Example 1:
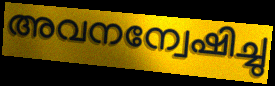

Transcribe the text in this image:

അവനന്വേഷിച്ചു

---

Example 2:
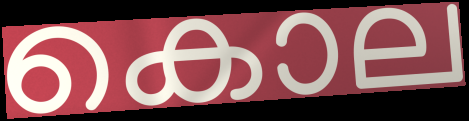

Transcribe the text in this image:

കൊല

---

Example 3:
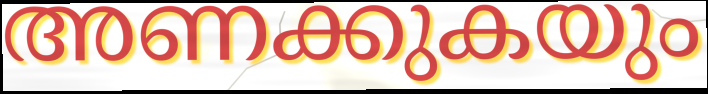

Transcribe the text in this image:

അണക്കുകയും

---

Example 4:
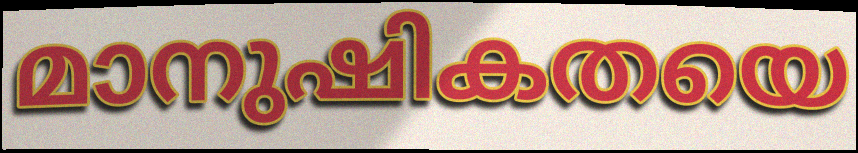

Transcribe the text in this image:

മാനുഷികതയെ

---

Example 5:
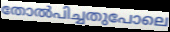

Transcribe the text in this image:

തോൽപിച്ചതുപോലെ